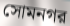
সোমনগর